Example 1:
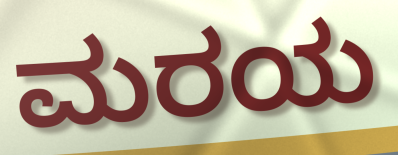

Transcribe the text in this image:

ಮರಯ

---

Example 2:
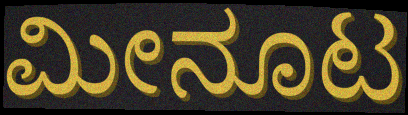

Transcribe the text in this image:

ಮೀನೂಟ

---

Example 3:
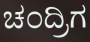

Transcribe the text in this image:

ಚಂದ್ರಿಗ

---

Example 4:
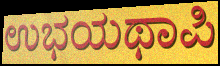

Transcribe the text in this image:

ಉಭಯಥಾಪಿ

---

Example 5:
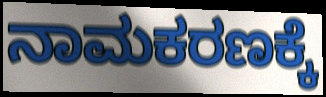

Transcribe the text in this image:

ನಾಮಕರಣಕ್ಕೆ